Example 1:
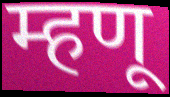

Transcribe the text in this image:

म्हणू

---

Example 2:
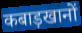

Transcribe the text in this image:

कबाड़खानों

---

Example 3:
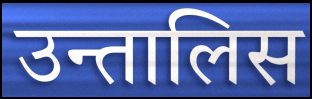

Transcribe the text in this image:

उन्तालिस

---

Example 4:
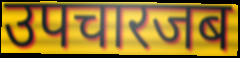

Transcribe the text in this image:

उपचारजब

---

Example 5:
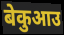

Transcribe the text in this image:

बेकुआउ